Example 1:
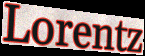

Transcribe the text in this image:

Lorentz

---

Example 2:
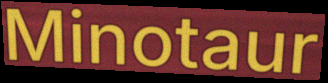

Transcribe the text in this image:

Minotaur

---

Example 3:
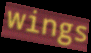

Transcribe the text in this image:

wings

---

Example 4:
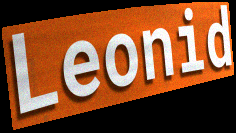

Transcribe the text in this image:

Leonid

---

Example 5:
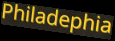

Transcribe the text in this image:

Philadephia